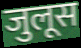
जुलूस